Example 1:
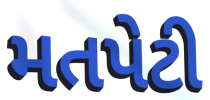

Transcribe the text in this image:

મતપેટી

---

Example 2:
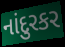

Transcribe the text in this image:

નાંદુરકર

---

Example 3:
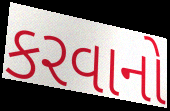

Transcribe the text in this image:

કરવાનો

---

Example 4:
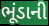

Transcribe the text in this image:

ભૂંડાની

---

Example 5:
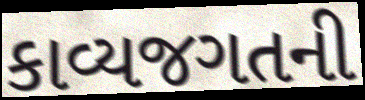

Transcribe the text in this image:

કાવ્યજગતની